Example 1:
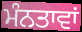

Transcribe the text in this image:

ਮੰਨਤਾਵਾਂ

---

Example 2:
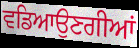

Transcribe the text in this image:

ਵਡਿਆਉਣਗੀਆਂ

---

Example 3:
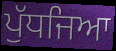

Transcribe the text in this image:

ਪੁੱਧਜਿਆ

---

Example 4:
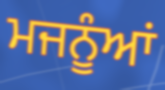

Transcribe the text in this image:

ਮਜਨੂੰਆਂ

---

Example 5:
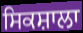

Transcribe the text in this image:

ਸਿਕਸ਼ਾਲਾ